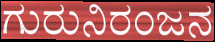
ಗುರುನಿರಂಜನ